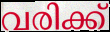
വരിക്ക്